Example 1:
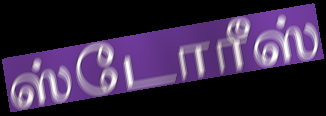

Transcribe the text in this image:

ஸ்டோரீஸ்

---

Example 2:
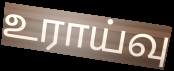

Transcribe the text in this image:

உராய்வு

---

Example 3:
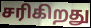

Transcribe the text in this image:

சரிகிறது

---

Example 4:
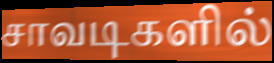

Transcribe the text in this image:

சாவடிகளில்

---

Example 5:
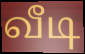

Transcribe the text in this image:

வீடி